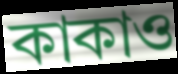
কাকাও